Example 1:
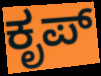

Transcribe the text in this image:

ಕೃಪ್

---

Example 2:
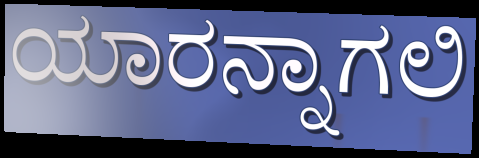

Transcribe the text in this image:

ಯಾರನ್ನಾಗಲಿ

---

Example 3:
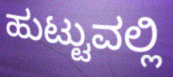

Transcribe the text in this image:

ಹುಟ್ಟುವಲ್ಲಿ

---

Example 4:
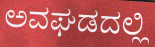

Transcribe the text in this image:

ಅವಘಡದಲ್ಲಿ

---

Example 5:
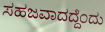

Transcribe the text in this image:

ಸಹಜವಾದದ್ದೆಂದು